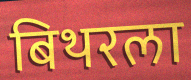
बिथरला